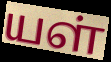
யள்